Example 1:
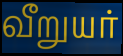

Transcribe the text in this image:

வீறுயர்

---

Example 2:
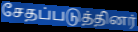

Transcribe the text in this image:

சேதப்படுத்தினர்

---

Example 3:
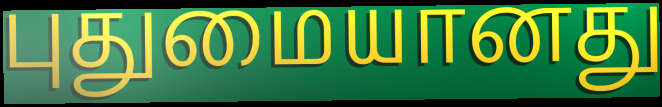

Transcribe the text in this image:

புதுமையானது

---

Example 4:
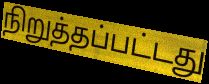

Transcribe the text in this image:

நிறுத்தப்பட்டது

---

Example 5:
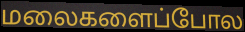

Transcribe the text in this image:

மலைகளைப்போல